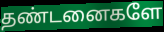
தண்டனைகளே